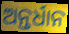
ଅନ୍ତର୍ଧାନ